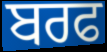
ਬਰਫ